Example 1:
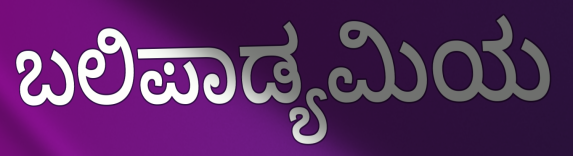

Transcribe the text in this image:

ಬಲಿಪಾಡ್ಯಮಿಯ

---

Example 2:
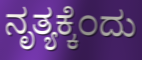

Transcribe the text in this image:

ನೃತ್ಯಕ್ಕೆಂದು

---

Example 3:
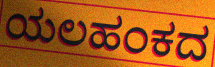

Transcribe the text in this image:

ಯಲಹಂಕದ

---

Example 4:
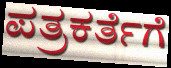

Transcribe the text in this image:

ಪತ್ರಕರ್ತೆಗೆ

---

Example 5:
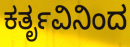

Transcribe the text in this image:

ಕರ್ತೃವಿನಿಂದ